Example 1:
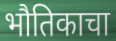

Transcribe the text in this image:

भौतिकाचा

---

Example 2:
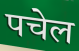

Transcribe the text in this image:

पचेल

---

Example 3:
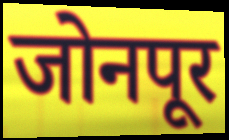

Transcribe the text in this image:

जोनपूर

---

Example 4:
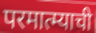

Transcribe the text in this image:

परमात्म्याची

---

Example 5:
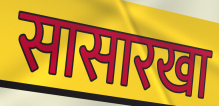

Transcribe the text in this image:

सासारखा